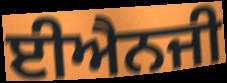
ਈਐਨਜੀ